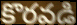
కొరవడి